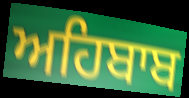
ਅਹਿਬਾਬ